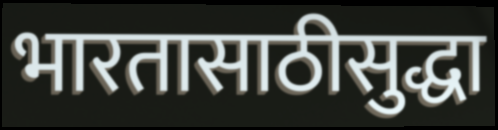
भारतासाठीसुद्धा